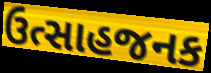
ઉત્સાહજનક